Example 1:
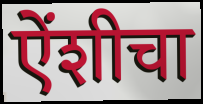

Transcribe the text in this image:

ऐंशीचा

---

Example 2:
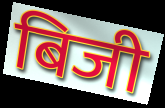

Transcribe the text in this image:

बिजी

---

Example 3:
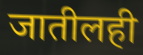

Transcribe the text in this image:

जातीलही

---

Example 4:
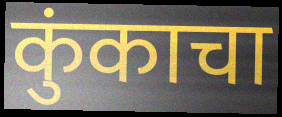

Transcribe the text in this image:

कुंकाचा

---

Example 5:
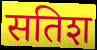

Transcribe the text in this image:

सतिश